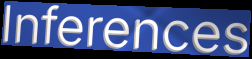
Inferences